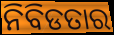
ନିବିଡତାର